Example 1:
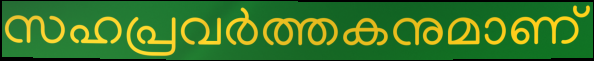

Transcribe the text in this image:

സഹപ്രവർത്തകനുമാണ്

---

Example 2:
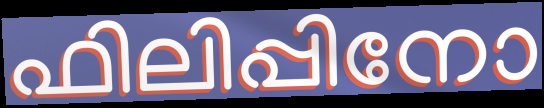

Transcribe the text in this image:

ഫിലിപ്പിനോ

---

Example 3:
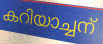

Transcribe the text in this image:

കറിയാച്ചന്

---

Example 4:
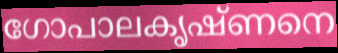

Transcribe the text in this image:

ഗോപാലകൃഷ്ണനെ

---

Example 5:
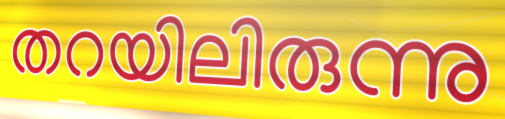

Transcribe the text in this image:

തറയിലിരുന്നു